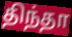
திந்தா